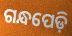
ଗନ୍ଧପେଡ଼ି